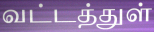
வட்டத்துள்